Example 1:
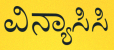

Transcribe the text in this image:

ವಿನ್ಯಾಸಿಸಿ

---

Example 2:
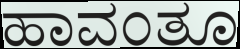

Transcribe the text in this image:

ಹಾವಂತೂ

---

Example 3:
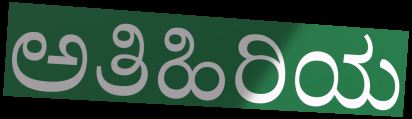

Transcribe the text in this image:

ಅತಿಹಿರಿಯ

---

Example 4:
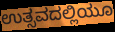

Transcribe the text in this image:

ಉತ್ಸವದಲ್ಲಿಯೂ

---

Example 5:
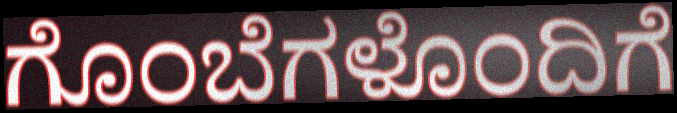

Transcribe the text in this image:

ಗೊಂಬೆಗಳೊಂದಿಗೆ